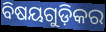
ବିଷୟଗୁଡ଼ିକର